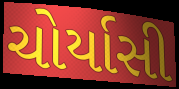
ચોર્યાસી